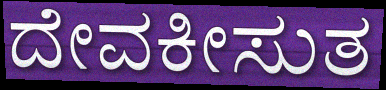
ದೇವಕೀಸುತ